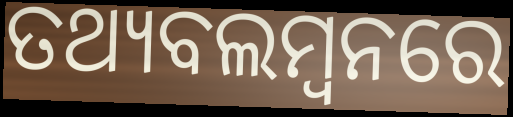
ତଥ୍ୟବଲମ୍ବନରେ